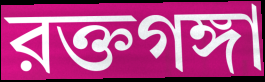
রক্তগঙ্গা